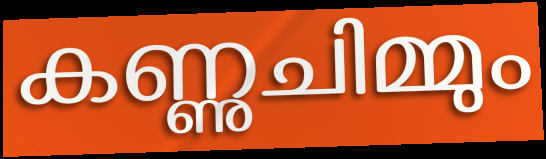
കണ്ണുചിമ്മും